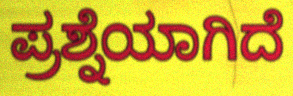
ಪ್ರಶ್ನೆಯಾಗಿದೆ